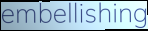
embellishing